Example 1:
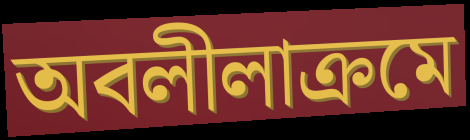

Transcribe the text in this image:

অবলীলাক্রমে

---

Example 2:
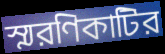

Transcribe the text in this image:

স্মরণিকাটির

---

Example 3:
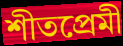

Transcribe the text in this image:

শীতপ্রেমী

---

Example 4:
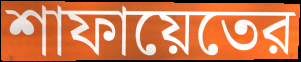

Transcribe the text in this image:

শাফায়েতের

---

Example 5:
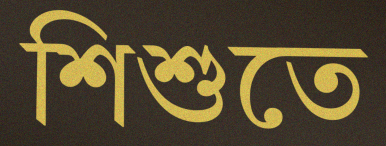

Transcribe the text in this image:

শিশুতে